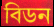
বিডন